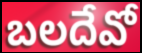
బలదేవో